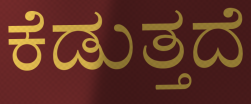
ಕೆಡುತ್ತದೆ